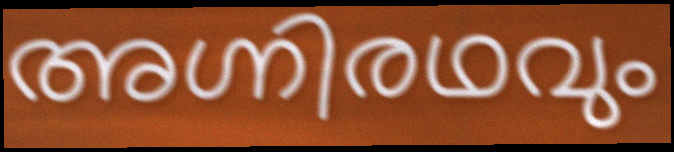
അഗ്നിരഥവും